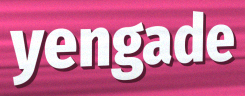
yengade